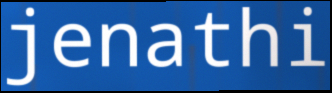
jenathi